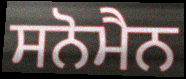
ਸਨੋਮੈਨ